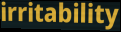
irritability